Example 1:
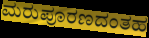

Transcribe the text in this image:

ಮರುಪೂರಣದಂತಹ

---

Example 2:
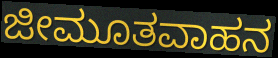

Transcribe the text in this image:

ಜೀಮೂತವಾಹನ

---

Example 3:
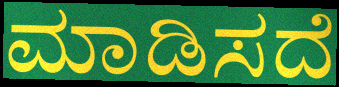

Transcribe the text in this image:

ಮಾಡಿಸದೆ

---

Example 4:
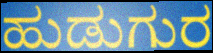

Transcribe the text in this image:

ಹುಡುಗುರ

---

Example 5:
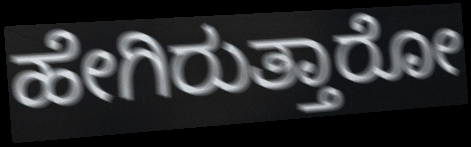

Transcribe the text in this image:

ಹೇಗಿರುತ್ತಾರೋ